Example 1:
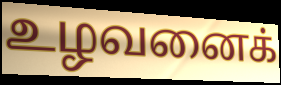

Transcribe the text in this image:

உழவனைக்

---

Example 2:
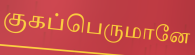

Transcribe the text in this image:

குகப்பெருமானே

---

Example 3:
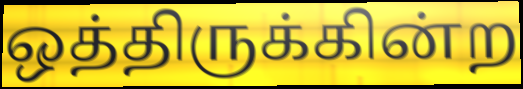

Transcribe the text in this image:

ஒத்திருக்கின்ற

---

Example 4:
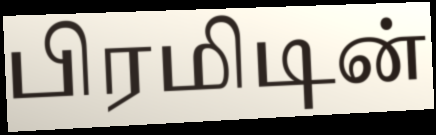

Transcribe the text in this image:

பிரமிடின்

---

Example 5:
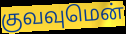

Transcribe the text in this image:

குவவுமென்